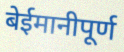
बेईमानीपूर्ण